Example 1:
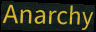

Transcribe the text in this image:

Anarchy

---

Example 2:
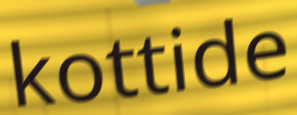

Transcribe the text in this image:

kottide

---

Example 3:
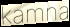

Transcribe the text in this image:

kamna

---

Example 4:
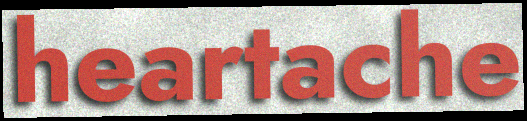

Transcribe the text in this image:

heartache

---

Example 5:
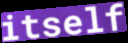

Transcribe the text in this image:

itself